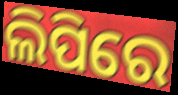
ଲିପିରେ